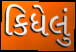
કિધેલું